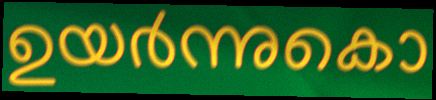
ഉയർന്നുകൊ